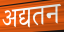
अद्यतन